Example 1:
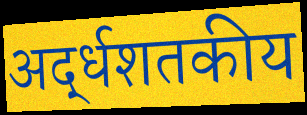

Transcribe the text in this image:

अर्द्धशतकीय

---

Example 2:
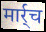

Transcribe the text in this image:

मार्र्च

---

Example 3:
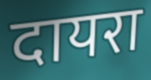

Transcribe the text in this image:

दायरा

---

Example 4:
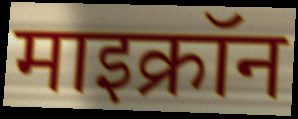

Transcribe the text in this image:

माइक्रॉन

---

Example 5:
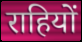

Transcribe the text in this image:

राहियों